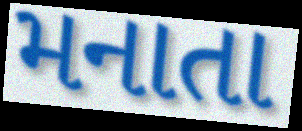
મનાતા